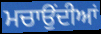
ਮਚਾਉਂਦੀਆਂ